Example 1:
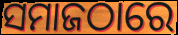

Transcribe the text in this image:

ସମାଜଠାରେ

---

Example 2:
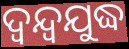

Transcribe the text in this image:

ଦ୍ୱନ୍ଦ୍ୱଯୁଦ୍ଧ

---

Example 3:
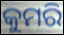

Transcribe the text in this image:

କୁମରି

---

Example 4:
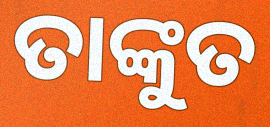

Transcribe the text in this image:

ତାଙ୍କୁତ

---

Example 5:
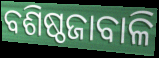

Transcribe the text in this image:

ବଶିଷ୍ଠଜାବାଳି